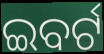
ଇବର୍ଟ